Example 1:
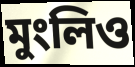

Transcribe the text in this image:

মুংলিও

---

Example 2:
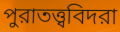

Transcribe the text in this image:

পুরাতত্ত্ববিদরা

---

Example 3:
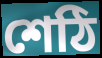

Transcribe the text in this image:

শেঠি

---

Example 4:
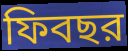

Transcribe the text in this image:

ফিবছর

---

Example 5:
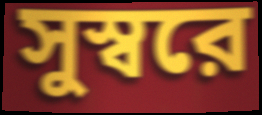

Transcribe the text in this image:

সুস্বরে